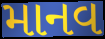
માનવ